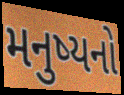
મનુષ્યનો